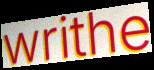
writhe